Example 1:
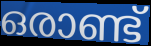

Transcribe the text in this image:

ഒരാണ്ട്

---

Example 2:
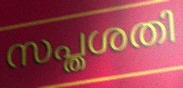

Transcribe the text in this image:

സപ്തശതി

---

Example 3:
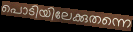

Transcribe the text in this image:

പൊടിയിലേക്കുതന്നെ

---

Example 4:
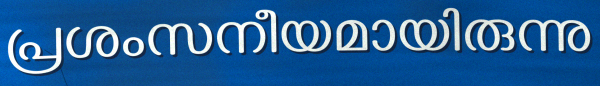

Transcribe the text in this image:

പ്രശംസനീയമായിരുന്നു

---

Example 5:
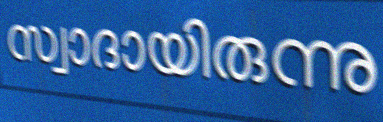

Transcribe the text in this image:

സ്വാദായിരുന്നു